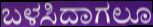
ಬಳಸಿದಾಗಲೂ